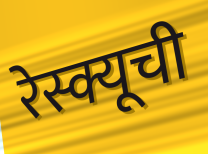
रेस्क्यूची